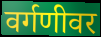
वर्गणीवर